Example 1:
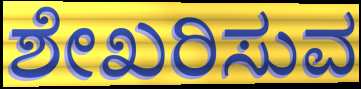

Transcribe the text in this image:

ಶೇಖರಿಸುವ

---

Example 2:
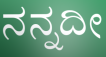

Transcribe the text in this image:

ನನ್ನದೀ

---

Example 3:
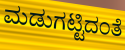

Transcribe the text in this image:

ಮಡುಗಟ್ಟಿದಂತೆ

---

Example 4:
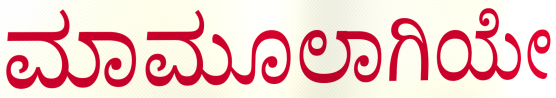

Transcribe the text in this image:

ಮಾಮೂಲಾಗಿಯೇ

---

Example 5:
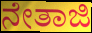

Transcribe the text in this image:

ನೇತಾಜಿ